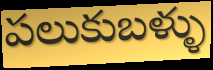
పలుకుబళ్ళు